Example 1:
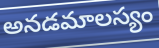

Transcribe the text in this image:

అనడమాలస్యం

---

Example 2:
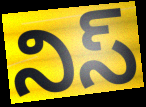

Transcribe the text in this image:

నిస్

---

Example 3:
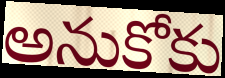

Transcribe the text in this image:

అనుకోకు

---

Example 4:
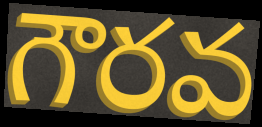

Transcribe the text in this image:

గౌరవ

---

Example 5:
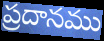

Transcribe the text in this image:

ప్రదానము